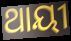
ଥାୟୀ